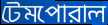
টেমপোরাল